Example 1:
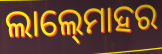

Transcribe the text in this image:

ଲାଲ୍‍ମୋହର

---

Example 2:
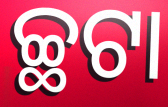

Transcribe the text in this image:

ଚ୍ଛଟା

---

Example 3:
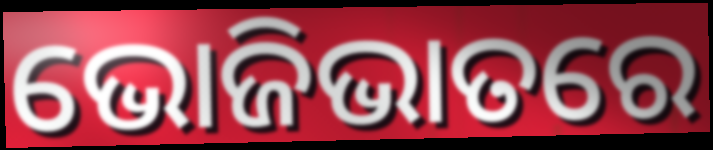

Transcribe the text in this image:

ଭୋଜିଭାତରେ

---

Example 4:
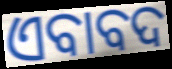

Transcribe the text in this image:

ଏବାବଦ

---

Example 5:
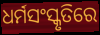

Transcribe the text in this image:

ଧର୍ମସଂସ୍କୃତିରେ